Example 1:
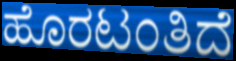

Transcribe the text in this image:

ಹೊರಟಂತಿದೆ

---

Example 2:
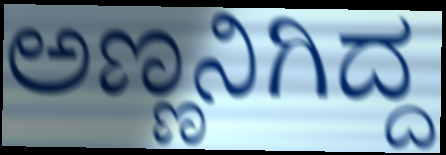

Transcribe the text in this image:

ಅಣ್ಣನಿಗಿದ್ದ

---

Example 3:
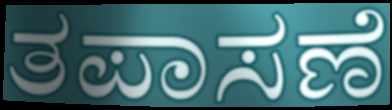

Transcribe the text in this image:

ತಪಾಸಣೆ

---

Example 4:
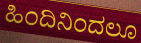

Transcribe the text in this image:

ಹಿಂದಿನಿಂದಲೂ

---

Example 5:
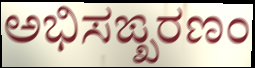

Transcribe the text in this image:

ಅಭಿಸಙ್ಖರಣಂ